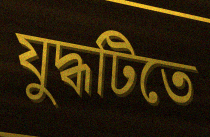
যুদ্ধটিতে